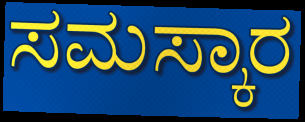
ಸಮಸ್ಕಾರ